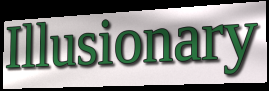
Illusionary